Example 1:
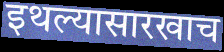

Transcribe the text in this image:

इथल्यासारखाच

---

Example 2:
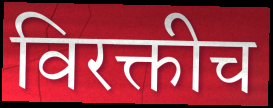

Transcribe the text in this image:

विरक्तीच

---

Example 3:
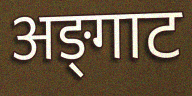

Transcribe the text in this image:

अङ्गाट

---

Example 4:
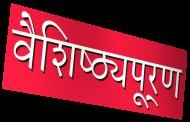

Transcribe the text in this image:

वैशिष्ठ्यपूर्ण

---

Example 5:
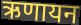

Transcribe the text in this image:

ऋणायन